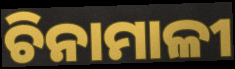
ଚିନାମାଳୀ